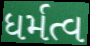
ધર્મત્વ